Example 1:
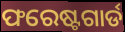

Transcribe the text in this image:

ଫରେଷ୍ଟଗାର୍ଡ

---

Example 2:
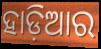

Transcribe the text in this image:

ହାଡ଼ିଆର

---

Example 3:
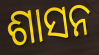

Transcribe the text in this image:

ଶାସନ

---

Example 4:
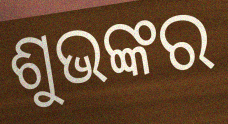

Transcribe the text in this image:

ଶୁଭଙ୍କର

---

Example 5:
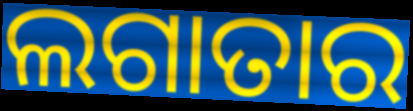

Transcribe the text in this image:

ଲଗାତାର